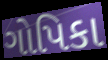
ગોપિકા